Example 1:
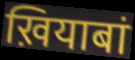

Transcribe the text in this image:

ख़ियाबां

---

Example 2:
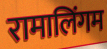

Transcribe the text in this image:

रामालिंगम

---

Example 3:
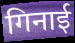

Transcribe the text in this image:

गिनाई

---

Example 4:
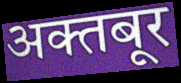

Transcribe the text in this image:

अक्तबूर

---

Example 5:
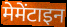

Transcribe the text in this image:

मेमेंटाइन